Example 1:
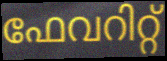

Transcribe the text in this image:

ഫേവറിറ്റ്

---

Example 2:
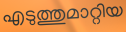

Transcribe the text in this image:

എടുത്തുമാറ്റിയ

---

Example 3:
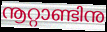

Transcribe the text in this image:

നൂറ്റാണ്ടിനു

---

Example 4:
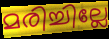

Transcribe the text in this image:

മരിച്ചില്ലേ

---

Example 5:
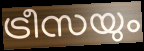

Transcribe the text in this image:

ട്രീസയും